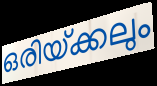
ഒരിയ്‌ക്കലും